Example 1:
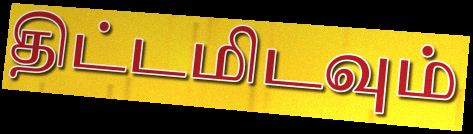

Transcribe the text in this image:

திட்டமிடவும்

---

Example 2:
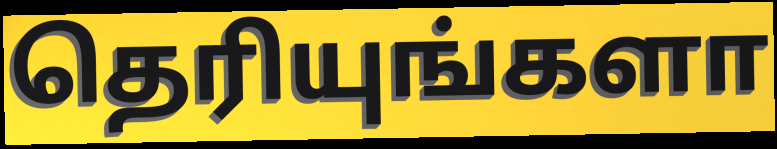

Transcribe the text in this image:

தெரியுங்களா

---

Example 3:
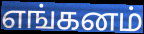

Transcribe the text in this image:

எங்கனம்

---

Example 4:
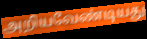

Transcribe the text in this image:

அறியவேண்டியது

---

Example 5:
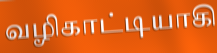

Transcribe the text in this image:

வழிகாட்டியாகி